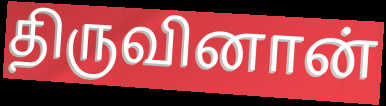
திருவினான்